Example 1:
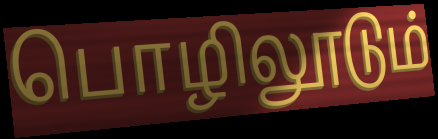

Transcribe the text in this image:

பொழிலூடும்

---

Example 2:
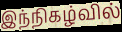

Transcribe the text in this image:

இந்நிகழ்வில்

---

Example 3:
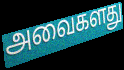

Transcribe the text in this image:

அவைகளது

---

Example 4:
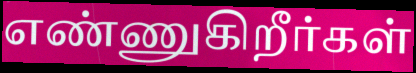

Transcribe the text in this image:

எண்ணுகிறீர்கள்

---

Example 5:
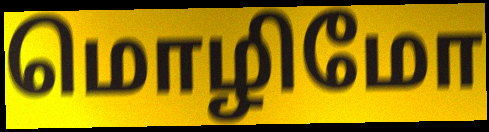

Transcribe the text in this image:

மொழிமோ